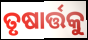
ତୃଷାର୍ତ୍ତକୁ